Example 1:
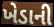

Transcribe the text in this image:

ખેડાની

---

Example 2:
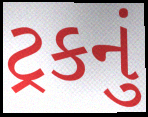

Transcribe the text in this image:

ટ્રકનું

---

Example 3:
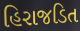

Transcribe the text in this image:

હિરાજડિત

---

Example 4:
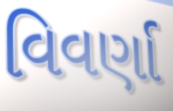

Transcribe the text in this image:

વિવર્ણા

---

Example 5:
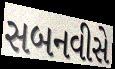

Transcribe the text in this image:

સબનવીસે